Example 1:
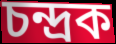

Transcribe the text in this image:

চন্দ্ৰক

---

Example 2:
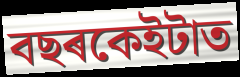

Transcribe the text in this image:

বছৰকেইটাত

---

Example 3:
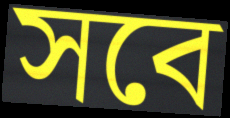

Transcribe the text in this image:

সবে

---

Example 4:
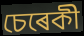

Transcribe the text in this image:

চেৰেকী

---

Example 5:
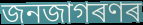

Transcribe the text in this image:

জনজাগৰণৰ